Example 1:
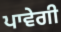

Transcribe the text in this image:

ਪਾਵੇਗੀ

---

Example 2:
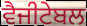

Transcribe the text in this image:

ਵੈਜੀਟੇਬਲ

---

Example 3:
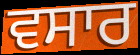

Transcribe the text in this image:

ਵਸਾਰ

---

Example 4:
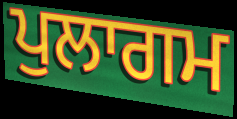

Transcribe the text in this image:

ਪੁਲਾਗਮ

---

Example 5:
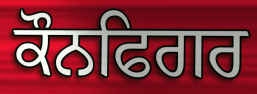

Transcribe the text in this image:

ਕੌਨਫਿਗਰ